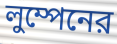
লুম্পেনের